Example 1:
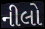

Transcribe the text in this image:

નીલો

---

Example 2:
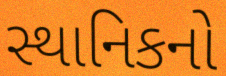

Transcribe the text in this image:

સ્થાનિકનો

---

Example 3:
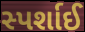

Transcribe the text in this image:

સ્પર્શાઈ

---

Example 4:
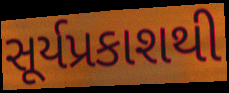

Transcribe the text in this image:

સૂર્યપ્રકાશથી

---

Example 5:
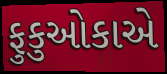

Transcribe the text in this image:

ફુકુઓકાએ